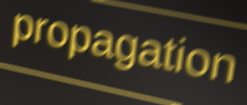
propagation